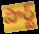
పార్ట్